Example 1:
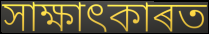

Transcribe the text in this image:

সাক্ষাৎকাৰত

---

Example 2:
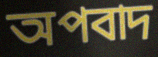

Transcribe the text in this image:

অপবাদ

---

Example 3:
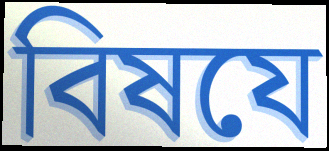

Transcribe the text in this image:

বিষযে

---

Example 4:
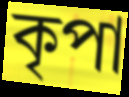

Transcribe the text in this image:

কৃপা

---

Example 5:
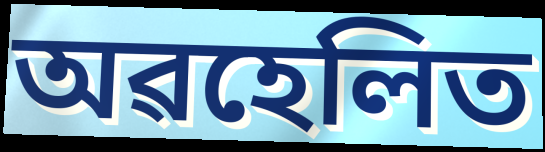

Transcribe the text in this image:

অৱহেলিত